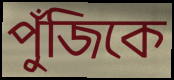
পুঁজিকে